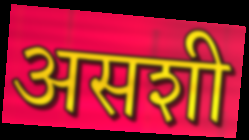
असशी